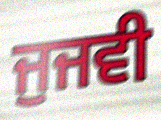
ਜੁਜਵੀ